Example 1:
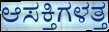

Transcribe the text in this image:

ಆಸಕ್ತಿಗಳತ್ತ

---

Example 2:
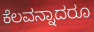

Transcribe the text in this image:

ಕೆಲವನ್ನಾದರೂ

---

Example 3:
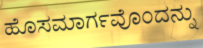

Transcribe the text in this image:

ಹೊಸಮಾರ್ಗವೊಂದನ್ನು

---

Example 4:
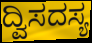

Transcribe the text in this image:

ದ್ವಿಸದಸ್ಯ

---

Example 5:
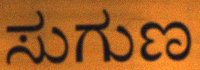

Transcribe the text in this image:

ಸುಗುಣ